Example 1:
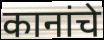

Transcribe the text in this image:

कानांचे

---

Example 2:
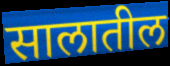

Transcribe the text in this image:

सालातील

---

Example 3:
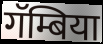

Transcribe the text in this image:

गॅम्बिया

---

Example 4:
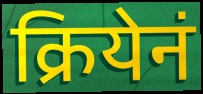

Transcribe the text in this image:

क्रियेनं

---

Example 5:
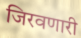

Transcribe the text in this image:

जिरवणारी